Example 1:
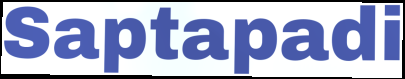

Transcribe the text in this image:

Saptapadi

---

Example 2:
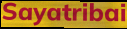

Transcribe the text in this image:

Sayatribai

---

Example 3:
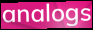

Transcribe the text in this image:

analogs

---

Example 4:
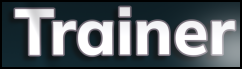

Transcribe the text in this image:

Trainer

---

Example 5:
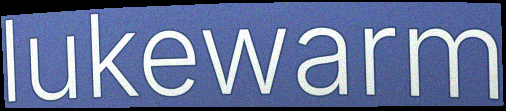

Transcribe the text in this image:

lukewarm